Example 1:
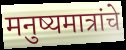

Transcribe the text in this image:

मनुष्यमात्रांचे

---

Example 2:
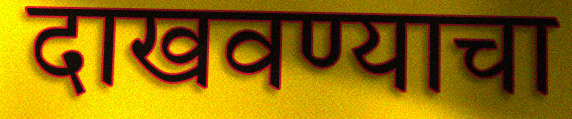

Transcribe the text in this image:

दाखवण्याचा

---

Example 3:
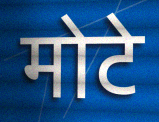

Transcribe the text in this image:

मोटे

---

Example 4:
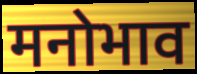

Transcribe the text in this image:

मनोभाव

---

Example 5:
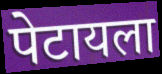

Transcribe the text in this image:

पेटायला